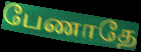
பேணாதே